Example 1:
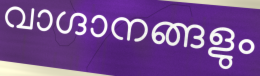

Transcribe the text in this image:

വാഗ്ദാനങ്ങളും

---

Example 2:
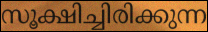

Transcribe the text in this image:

സൂക്ഷിച്ചിരിക്കുന്ന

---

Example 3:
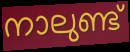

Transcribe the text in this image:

നാലുണ്ട്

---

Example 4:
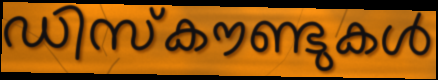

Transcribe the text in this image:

ഡിസ്കൗണ്ടുകൾ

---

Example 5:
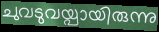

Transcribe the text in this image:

ചുവടുവയ്പായിരുന്നു